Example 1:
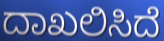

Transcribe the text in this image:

ದಾಖಲಿಸಿದೆ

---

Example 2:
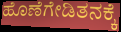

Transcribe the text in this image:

ಹೊಣೆಗೇಡಿತನಕ್ಕೆ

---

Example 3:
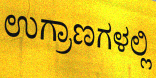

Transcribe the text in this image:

ಉಗ್ರಾಣಗಳಲ್ಲಿ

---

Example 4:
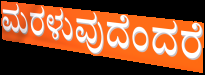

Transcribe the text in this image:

ಮರಳುವುದೆಂದರೆ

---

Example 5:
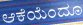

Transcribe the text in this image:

ಆಕೆಯೆಂದೂ